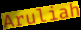
Aruliah